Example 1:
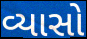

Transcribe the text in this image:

વ્યાસો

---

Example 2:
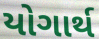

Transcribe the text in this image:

યોગાર્થ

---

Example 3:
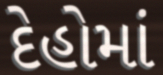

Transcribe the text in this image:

દેહોમાં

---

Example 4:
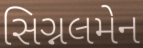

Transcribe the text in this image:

સિગ્નલમેન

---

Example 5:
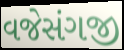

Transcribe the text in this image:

વજેસંગજી